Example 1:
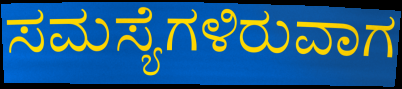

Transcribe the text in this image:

ಸಮಸ್ಯೆಗಳಿರುವಾಗ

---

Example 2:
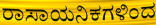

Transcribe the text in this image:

ರಾಸಾಯನಿಕಗಳಿಂದ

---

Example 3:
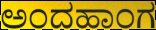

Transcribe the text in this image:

ಅಂದಹಾಂಗ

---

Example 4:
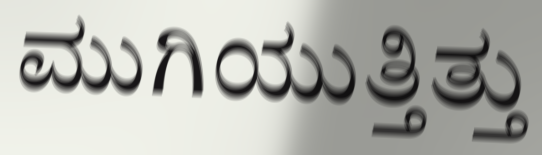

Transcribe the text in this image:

ಮುಗಿಯುತ್ತಿತ್ತು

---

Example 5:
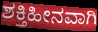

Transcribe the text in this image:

ಶಕ್ತಿಹೀನವಾಗಿ